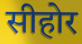
सीहोर